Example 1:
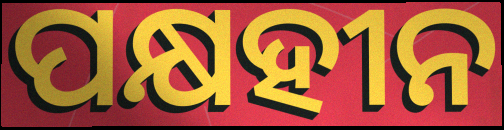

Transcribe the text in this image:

ପକ୍ଷହୀନ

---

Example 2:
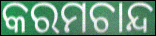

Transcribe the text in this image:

କରମଚାନ୍ଦ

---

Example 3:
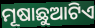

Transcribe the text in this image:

ମୂଷାଛୁଆଟିଏ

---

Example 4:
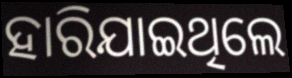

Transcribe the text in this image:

ହାରିଯାଇଥିଲେ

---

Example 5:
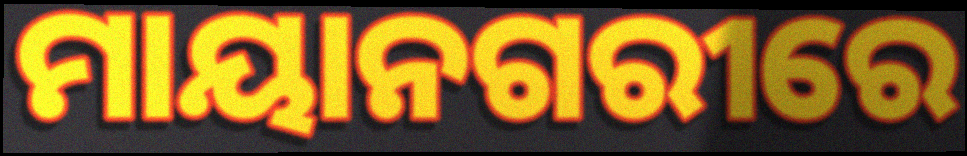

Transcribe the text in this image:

ମାୟାନଗରୀରେ